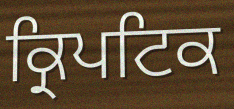
ਕ੍ਰਿਪਟਿਕ